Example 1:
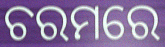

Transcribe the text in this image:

ଚରମରେ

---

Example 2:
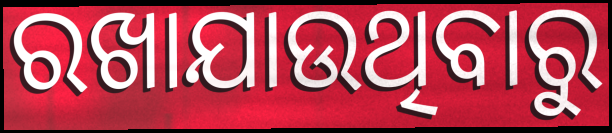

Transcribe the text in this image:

ରଖାଯାଉଥିବାରୁ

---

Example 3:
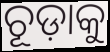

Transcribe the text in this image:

ଚୂଡ଼ାକୁ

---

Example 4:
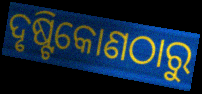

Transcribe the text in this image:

ଦୃଷ୍ଟିକୋଣଠାରୁ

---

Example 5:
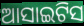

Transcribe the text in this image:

ଆସାଇଟିସ